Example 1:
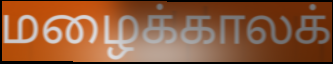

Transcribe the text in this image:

மழைக்காலக்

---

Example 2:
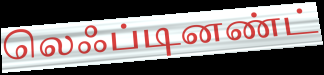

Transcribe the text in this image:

லெஃப்டினண்ட்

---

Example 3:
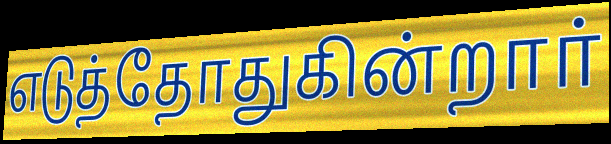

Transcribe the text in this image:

எடுத்தோதுகின்றார்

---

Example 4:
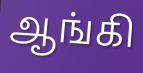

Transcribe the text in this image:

ஆங்கி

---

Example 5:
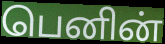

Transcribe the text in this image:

பெனின்